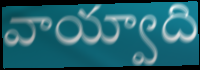
వాయ్వాది